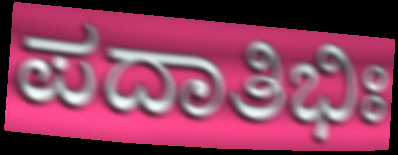
ಪದಾತಿಭಿಃ